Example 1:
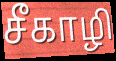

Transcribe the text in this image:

சீகாழி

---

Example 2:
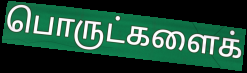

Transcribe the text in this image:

பொருட்களைக்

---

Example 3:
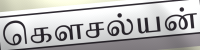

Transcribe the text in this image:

கௌசல்யன்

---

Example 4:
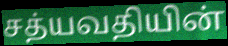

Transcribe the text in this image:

சத்யவதியின்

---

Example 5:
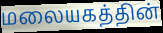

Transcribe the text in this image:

மலையகத்தின்